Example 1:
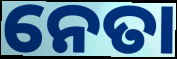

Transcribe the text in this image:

ନେତା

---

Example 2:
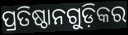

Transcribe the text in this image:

ପ୍ରତିଷ୍ଠାନଗୁଡ଼ିକର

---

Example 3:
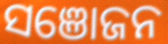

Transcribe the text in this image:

ସଞୋଜନ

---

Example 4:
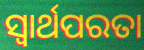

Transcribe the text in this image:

ସ୍ବାର୍ଥପରତା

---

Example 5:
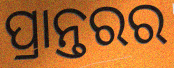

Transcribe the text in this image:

ପ୍ରାନ୍ତରର